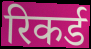
रिकर्ड